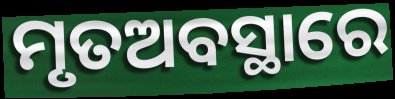
ମୃତଅବସ୍ଥାରେ